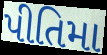
પીતિમા